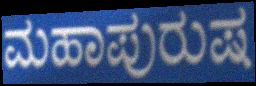
ಮಹಾಪುರುಷ